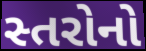
સ્તરોનો